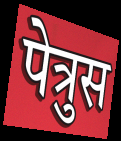
पेत्रुस